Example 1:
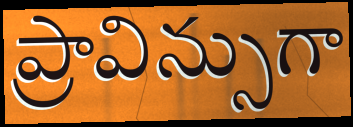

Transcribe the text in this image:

ప్రావిన్సుగా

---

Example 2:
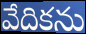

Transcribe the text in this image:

వేదికను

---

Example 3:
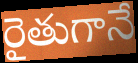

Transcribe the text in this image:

రైతుగానే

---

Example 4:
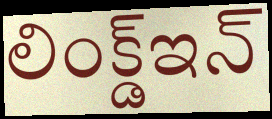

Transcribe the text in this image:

లింక్డ్ఇన్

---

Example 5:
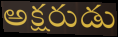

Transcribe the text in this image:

అక్షరుడు